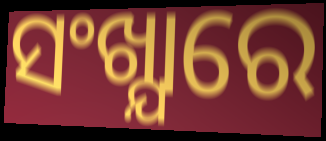
ସଂଖ୍ଯାରେ